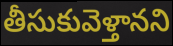
తీసుకువెళ్తానని